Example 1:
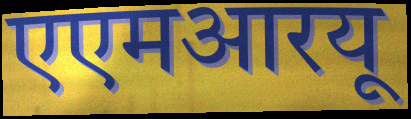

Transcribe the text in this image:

एएमआरयू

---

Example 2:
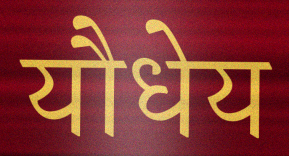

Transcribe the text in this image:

यौधेय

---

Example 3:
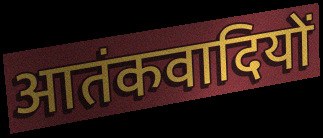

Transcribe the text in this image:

आतंकवादियों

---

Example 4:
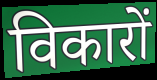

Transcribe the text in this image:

विकारों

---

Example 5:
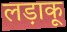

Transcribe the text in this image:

लड़ाकू